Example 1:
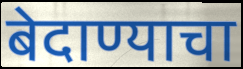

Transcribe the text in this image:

बेदाण्याचा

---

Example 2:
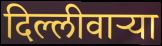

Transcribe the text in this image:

दिल्लीवाऱ्या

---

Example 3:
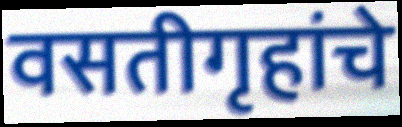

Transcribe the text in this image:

वसतीगृहांचे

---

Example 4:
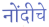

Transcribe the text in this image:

नोंदीचे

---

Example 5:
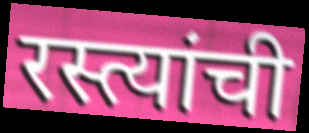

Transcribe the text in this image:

रस्त्यांची